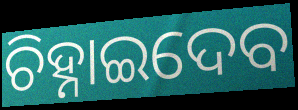
ଚିହ୍ନାଇଦେବ